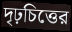
দৃঢ়চিত্তের